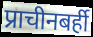
प्राचीनबर्ही